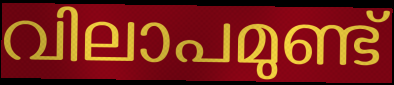
വിലാപമുണ്ട്